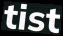
tist